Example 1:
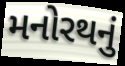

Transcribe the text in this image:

મનોરથનું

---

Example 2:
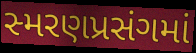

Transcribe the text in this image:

સ્મરણપ્રસંગમાં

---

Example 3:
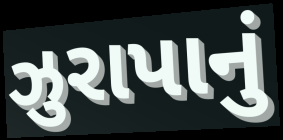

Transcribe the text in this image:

ઝુરાપાનું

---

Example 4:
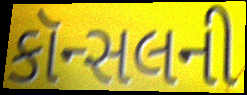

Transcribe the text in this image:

કૉન્સલની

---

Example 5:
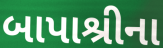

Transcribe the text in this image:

બાપાશ્રીના